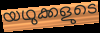
യഥുക്കളുടെ